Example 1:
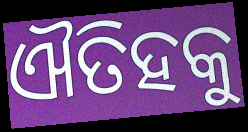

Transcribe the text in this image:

ଐତିହକୁ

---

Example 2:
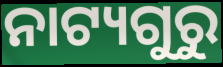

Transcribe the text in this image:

ନାଟ୍ୟଗୁରୁ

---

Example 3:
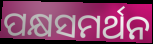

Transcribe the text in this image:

ପକ୍ଷସମର୍ଥନ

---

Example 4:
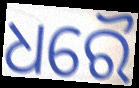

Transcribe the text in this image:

ଧରୈ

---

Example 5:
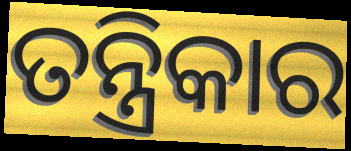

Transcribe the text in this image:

ତନ୍ତ୍ରିକାର